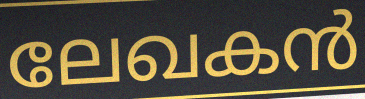
ലേഖകൻ